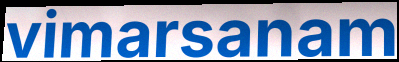
vimarsanam